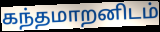
கந்தமாறனிடம்